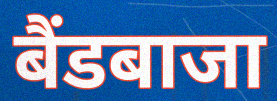
बैंडबाजा